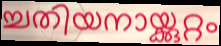
ച്ചതിയനായ്ക്കുറ്റം